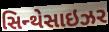
સિન્થેસાઇઝર